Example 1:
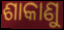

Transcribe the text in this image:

ଶାକାଣୁ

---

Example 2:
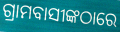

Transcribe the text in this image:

ଗ୍ରାମବାସୀଙ୍କଠାରେ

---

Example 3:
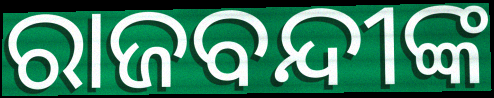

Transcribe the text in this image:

ରାଜବନ୍ଦୀଙ୍କ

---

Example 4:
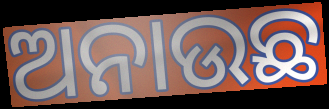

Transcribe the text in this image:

ଅନାଉଛ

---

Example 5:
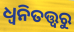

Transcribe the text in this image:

ଧ୍ୱନିତତ୍ତ୍ୱରୁ